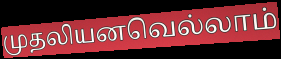
முதலியனவெல்லாம்